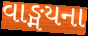
વાઙ્મયના